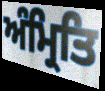
ਅੰਮ੍ਰਿਤਿ